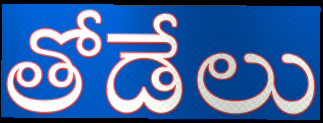
తోడేలు